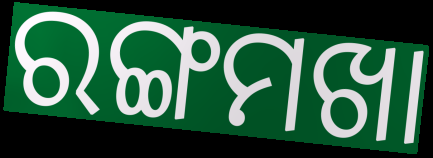
ରଙ୍ଗମଖା